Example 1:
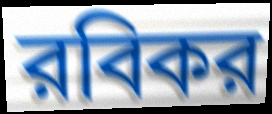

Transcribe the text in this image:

রবিকর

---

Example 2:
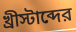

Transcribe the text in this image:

খ্রীস্টাব্দের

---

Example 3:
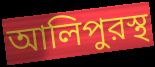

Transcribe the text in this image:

আলিপুরস্থ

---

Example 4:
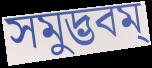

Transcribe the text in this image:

সমুদ্ভবম্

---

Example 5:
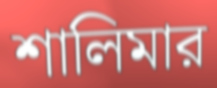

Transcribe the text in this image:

শালিমার